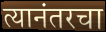
त्यानंतरचा